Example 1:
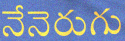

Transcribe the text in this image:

నేనెరుగు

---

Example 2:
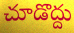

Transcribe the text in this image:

చూడొద్దు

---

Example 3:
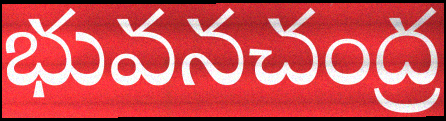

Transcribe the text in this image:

భువనచంద్ర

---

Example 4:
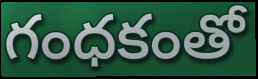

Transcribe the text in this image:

గంధకంతో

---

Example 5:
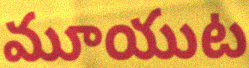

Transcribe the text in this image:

మూయుట